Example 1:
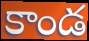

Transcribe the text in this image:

కాండ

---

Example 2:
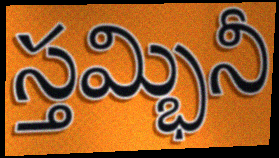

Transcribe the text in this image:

స్తమ్భినీ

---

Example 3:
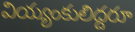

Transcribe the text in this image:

వియ్యంకులిద్దరూ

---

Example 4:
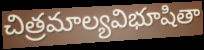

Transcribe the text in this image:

చిత్రమాల్యవిభూషితా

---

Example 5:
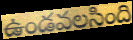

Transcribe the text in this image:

ఉండవలసింది